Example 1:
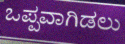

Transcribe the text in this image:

ಒಪ್ಪವಾಗಿಡಲು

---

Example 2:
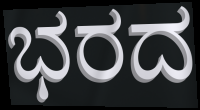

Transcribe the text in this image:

ಭರದ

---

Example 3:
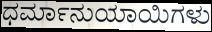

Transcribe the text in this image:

ಧರ್ಮಾನುಯಾಯಿಗಳು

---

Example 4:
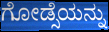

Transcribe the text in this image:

ಗೋಡ್ಸೆಯನ್ನು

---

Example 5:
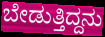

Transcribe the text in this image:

ಬೇಡುತ್ತಿದ್ದನು